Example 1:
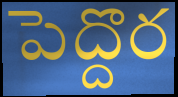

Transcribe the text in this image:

పెద్దొర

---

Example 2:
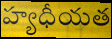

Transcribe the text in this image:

హ్యధీయత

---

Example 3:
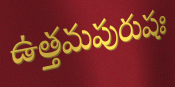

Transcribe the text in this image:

ఉత్తమపురుషః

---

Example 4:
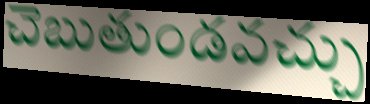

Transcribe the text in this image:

చెబుతుండవచ్చు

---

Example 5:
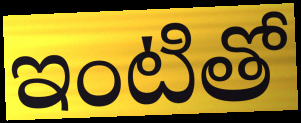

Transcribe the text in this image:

ఇంటితో